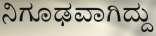
ನಿಗೂಢವಾಗಿದ್ದು